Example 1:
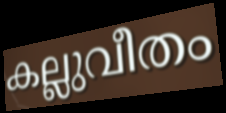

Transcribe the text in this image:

കല്ലുവീതം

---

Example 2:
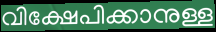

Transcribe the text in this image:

വിക്ഷേപിക്കാനുള്ള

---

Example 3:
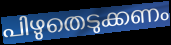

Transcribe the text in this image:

പിഴുതെടുക്കണം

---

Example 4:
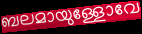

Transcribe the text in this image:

ബലമായുള്ളോവേ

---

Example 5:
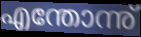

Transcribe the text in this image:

എന്തോന്നു്